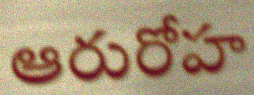
ఆరురోహ